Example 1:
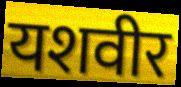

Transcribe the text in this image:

यशवीर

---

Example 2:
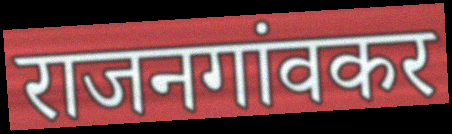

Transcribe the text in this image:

राजनगांवकर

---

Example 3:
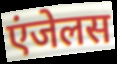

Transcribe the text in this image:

एंजेलस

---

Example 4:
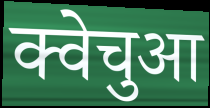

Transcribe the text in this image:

क्वेचुआ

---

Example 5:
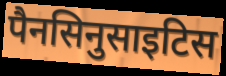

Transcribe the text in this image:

पैनसिनुसाइटिस